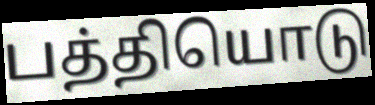
பத்தியொடு